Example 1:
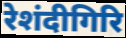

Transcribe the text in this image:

रेशंदीगिरि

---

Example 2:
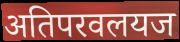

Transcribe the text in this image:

अतिपरवलयज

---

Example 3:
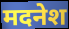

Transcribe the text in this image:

मदनेश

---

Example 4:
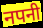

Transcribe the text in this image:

नपनी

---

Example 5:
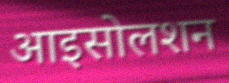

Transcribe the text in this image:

आइसोलशन